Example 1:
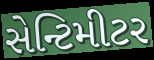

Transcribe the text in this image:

સેન્ટિમીટર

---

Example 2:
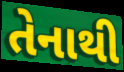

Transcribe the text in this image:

તેનાથી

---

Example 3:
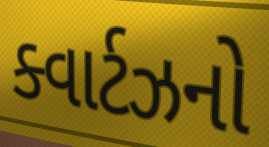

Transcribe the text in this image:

ક્વાર્ટઝનો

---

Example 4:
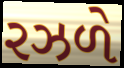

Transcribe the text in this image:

રઝળે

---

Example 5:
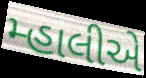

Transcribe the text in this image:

મ્હાલીએ